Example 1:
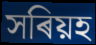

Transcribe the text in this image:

সৰিয়হ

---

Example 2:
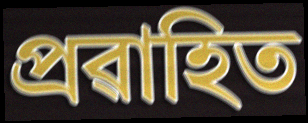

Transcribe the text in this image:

প্ৰৱাহিত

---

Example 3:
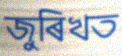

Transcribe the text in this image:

জুৰিখত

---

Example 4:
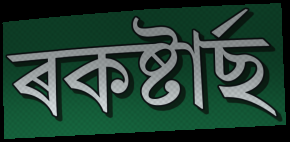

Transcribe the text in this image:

ৰকষ্টাৰ্ছ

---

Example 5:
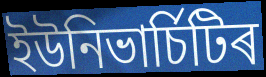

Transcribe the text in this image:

ইউনিভাৰ্চিটিৰ